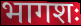
भागशः